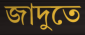
জাদুতে